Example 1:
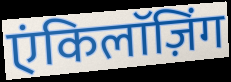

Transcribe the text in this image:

एंकिलॉज़िंग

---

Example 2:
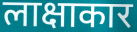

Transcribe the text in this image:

लाक्षाकार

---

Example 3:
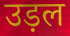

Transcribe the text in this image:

उड़ल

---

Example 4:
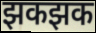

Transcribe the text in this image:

झकझक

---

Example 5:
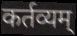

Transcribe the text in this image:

कर्तव्यम्